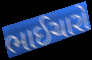
ભાઈચારો